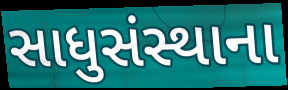
સાધુસંસ્થાના